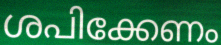
ശപിക്കേണം